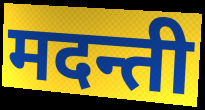
मदन्ती